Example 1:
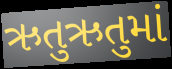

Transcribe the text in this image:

ઋતુઋતુમાં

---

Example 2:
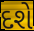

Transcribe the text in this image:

દશે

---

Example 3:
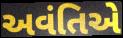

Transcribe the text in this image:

અવંતિએ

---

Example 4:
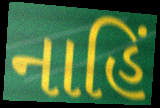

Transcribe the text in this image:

નાહિં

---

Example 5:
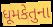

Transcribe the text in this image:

ધૂમકેતુના